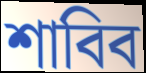
শাবিব